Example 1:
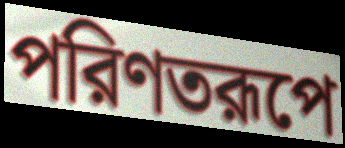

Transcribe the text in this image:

পরিণতরূপে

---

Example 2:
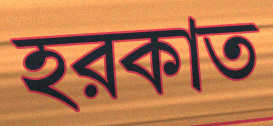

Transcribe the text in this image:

হরকাত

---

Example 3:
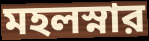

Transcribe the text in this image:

মহলস্নার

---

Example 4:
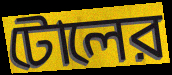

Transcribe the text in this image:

টোলের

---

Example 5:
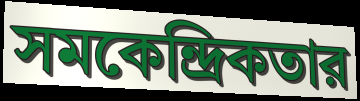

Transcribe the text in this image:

সমকেন্দ্রিকতার